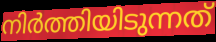
നിർത്തിയിടുന്നത്